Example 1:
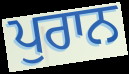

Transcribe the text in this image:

ਪੁਰਾਨ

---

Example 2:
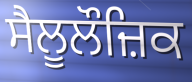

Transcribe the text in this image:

ਸੈਲੂਲੌਜ਼ਿਕ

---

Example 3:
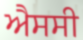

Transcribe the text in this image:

ਐਸਸੀ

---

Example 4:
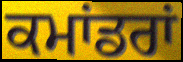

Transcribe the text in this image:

ਕਮਾਂਡਰਾਂ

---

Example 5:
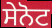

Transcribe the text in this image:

ਸੇਨੋਟ